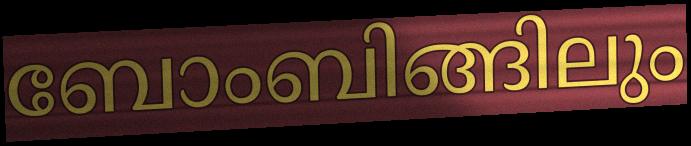
ബോംബിങ്ങിലും